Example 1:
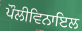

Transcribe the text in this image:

ਪੌਲੀਵਿਨਾਇਲ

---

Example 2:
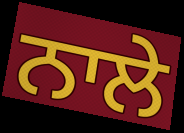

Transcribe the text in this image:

ਨਾਲੇ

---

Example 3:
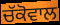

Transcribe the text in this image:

ਚੱਕੋਵਾਲ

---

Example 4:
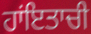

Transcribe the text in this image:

ਹਾਂਇਤਾਚੀ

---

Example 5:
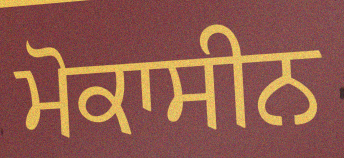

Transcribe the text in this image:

ਮੋਕਾਸੀਨ